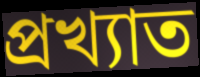
প্রখ্যাত